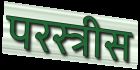
परस्त्रीस